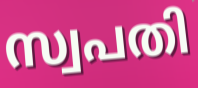
സ്വപതി